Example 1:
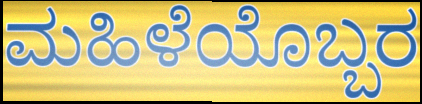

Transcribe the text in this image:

ಮಹಿಳೆಯೊಬ್ಬರ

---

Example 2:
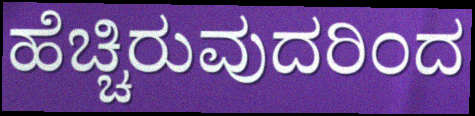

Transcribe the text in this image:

ಹೆಚ್ಚಿರುವುದರಿಂದ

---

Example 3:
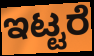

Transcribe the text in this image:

ಇಟ್ಟರೆ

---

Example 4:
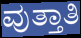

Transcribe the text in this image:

ವುತ್ತಾತಿ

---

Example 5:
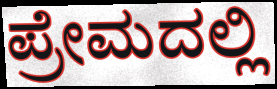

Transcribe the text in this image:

ಪ್ರೇಮದಲ್ಲಿ